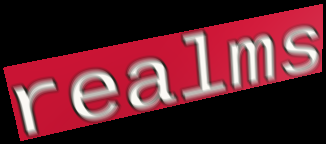
realms